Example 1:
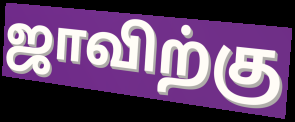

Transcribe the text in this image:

ஜாவிற்கு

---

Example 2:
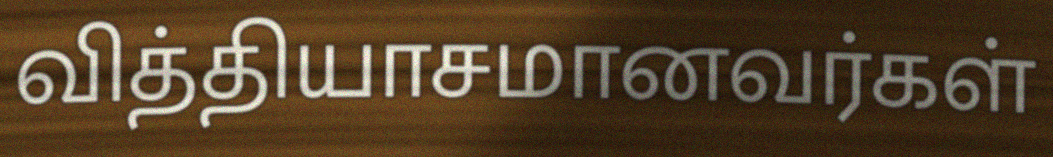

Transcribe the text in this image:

வித்தியாசமானவர்கள்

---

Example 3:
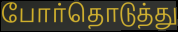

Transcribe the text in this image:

போர்தொடுத்து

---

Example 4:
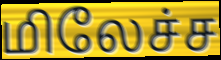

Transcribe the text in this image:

மிலேச்ச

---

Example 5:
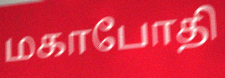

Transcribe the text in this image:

மகாபோதி